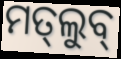
ମତ୍‌ଲୁବ୍